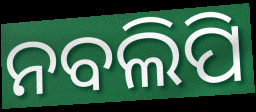
ନବଲିପି